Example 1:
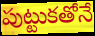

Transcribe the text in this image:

పుట్టుకతోనే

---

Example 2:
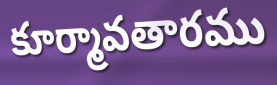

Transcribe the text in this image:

కూర్మావతారము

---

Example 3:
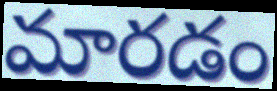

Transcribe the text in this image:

మారడం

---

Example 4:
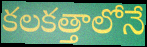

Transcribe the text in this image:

కలకత్తాలోనే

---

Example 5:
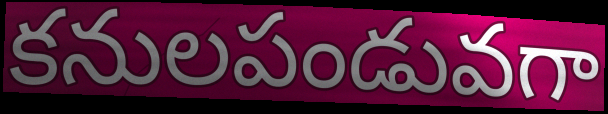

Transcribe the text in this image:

కనులపండువగా